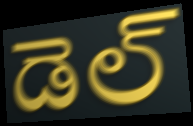
డెల్